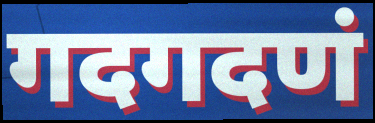
गदगदणं